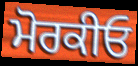
ਮੋਰਕੀਓ